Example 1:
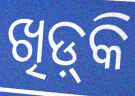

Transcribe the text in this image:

ଖିଡ଼୍‌କି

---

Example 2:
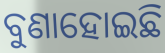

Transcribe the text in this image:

ବୁଣାହୋଇଛି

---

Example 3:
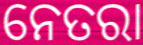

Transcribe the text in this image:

ନେତରା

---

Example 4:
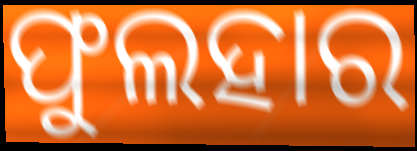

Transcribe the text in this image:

ଫୁଲହାର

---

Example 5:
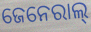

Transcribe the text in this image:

ଜେନେରାଲ୍